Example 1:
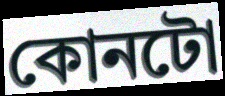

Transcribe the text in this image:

কোনটো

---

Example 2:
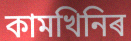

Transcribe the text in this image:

কামখিনিৰ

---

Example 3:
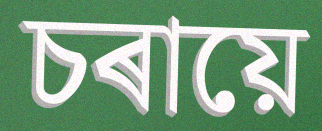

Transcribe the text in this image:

চৰায়ে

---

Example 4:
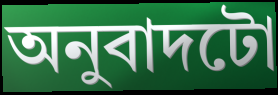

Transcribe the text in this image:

অনুবাদটো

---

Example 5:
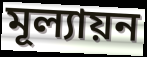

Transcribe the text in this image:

মূল্যায়ন